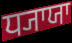
ਧ੍ਯਾਯਾ